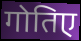
गोतिए